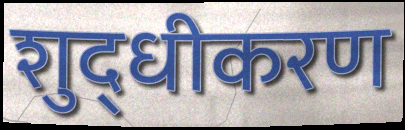
शुद्धीकरण